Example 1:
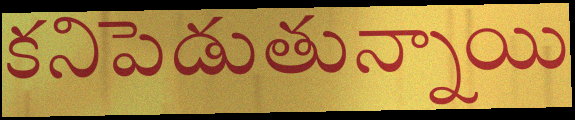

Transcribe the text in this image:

కనిపెడుతున్నాయి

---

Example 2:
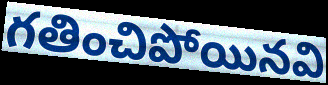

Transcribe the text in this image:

గతించిపోయినవి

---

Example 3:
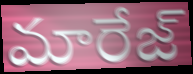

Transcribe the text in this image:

మారేజ్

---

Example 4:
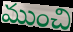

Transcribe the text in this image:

ముంచి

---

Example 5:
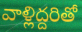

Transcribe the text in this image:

వాళ్లిద్దరితో